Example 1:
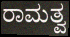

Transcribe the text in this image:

ರಾಮತ್ವ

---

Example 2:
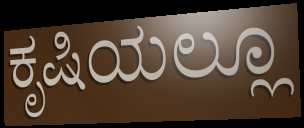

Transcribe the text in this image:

ಕೃಷಿಯಲ್ಲೂ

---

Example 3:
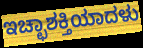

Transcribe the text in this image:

ಇಚ್ಛಾಶಕ್ತಿಯಾದಳು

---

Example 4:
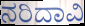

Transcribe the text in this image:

ನರಿದಾವಿ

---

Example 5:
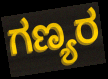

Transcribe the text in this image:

ಗಣ್ಯರ